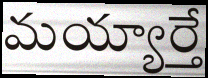
మయ్యార్తే